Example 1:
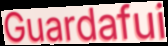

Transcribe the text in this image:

Guardafui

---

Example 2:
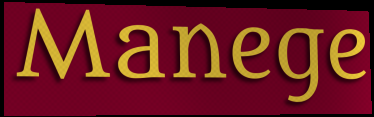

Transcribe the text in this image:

Manege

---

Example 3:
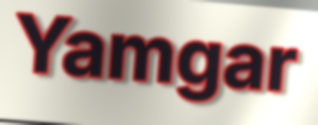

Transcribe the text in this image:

Yamgar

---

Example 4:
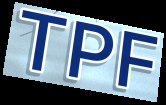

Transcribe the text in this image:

TPF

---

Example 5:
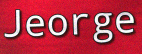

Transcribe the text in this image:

Jeorge